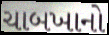
ચાબખાનો